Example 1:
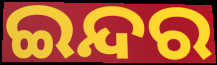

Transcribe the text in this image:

ଇନ୍ଦର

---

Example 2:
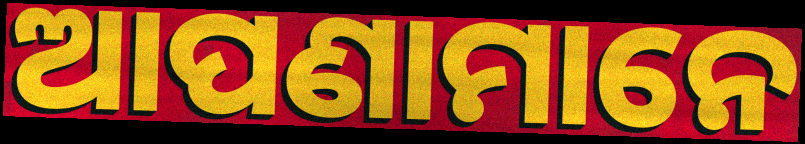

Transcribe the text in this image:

ଆପଣାମାନେ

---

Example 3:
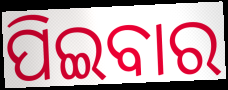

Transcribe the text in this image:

ପିଇବାର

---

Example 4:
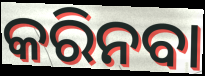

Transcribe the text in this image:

କରିନବା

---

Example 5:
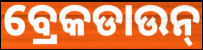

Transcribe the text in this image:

ବ୍ରେକଡାଉନ୍